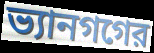
ভ্যানগগের